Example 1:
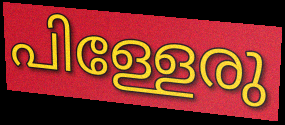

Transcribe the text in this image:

പിള്ളേരു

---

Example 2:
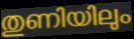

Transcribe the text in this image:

തുണിയിലും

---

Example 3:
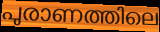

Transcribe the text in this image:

പുരാണത്തിലെ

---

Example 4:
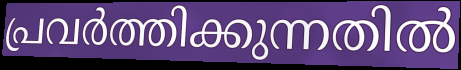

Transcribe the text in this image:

പ്രവർത്തിക്കുന്നതിൽ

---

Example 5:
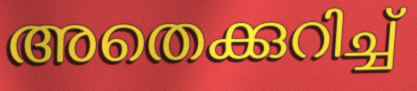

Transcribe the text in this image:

അതെക്കുറിച്ച്